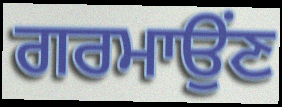
ਗਰਮਾਉਂਣ